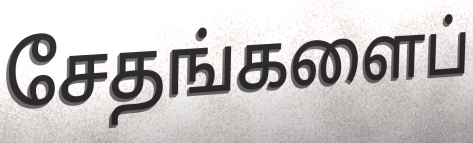
சேதங்களைப்